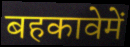
बहकावेमें